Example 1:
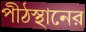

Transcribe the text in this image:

পীঠস্থানের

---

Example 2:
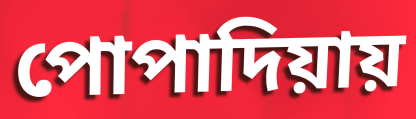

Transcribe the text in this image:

পোপাদিয়ায়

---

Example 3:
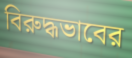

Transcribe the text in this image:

বিরুদ্ধভাবের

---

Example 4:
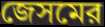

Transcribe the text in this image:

জেসমের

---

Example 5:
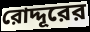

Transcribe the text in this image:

রোদ্দূরের